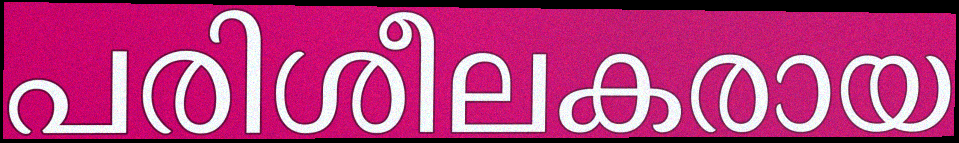
പരിശീലകരായ